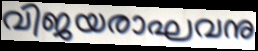
വിജയരാഘവനു